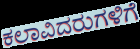
ಕಲಾವಿದರುಗಳಿಗೆ